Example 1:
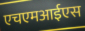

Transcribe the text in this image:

एचएमआईएस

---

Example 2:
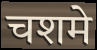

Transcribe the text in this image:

चशमे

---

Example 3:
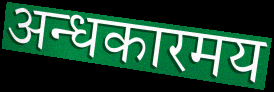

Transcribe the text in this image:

अन्धकारमय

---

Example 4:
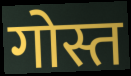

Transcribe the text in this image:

गोस्त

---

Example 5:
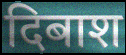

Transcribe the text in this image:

दिबाश